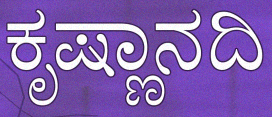
ಕೃಷ್ಣಾನದಿ